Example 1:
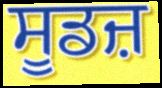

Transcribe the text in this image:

ਸੂਡਜ਼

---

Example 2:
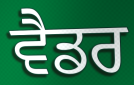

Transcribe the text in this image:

ਵੈਡਰ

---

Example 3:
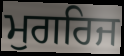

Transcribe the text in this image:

ਮੁਗਰਿਜ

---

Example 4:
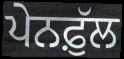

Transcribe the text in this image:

ਪੇਨਫ਼ੁੱਲ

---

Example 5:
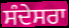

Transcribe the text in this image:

ਸੰਦੇਸਰਾ